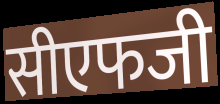
सीएफजी